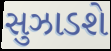
સુઝાડશે